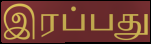
இரப்பது